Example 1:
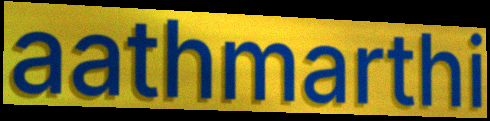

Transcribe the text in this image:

aathmarthi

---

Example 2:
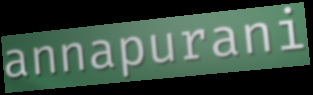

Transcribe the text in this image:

annapurani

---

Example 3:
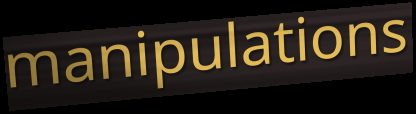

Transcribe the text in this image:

manipulations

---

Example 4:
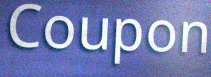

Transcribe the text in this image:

Coupon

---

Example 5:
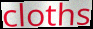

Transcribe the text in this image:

cloths